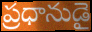
ప్రధానుడై